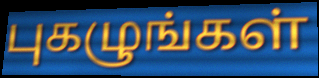
புகழுங்கள்